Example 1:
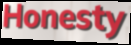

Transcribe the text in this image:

Honesty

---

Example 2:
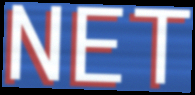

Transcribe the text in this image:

NET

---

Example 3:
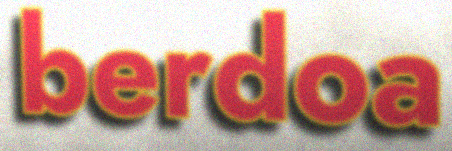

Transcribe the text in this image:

berdoa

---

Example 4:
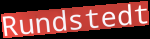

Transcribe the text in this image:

Rundstedt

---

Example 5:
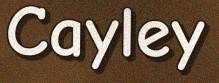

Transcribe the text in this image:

Cayley